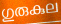
ഗുരുകുല